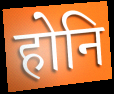
होनि